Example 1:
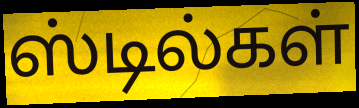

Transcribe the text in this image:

ஸ்டில்கள்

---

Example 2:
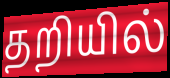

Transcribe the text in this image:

தறியில்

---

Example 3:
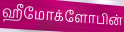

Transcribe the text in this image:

ஹீமோக்ளோபின்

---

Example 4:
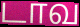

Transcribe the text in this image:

டாவ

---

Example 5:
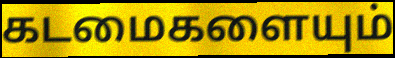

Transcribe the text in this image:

கடமைகளையும்